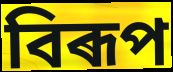
বিৰূপ